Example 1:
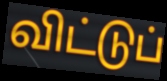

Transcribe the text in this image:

விட்டுப்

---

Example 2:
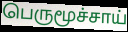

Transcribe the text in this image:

பெருமூச்சாய்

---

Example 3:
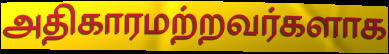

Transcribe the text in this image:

அதிகாரமற்றவர்களாக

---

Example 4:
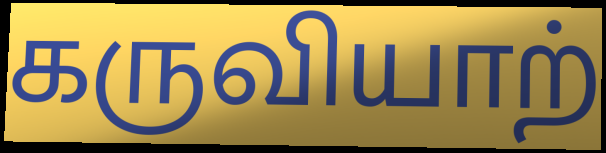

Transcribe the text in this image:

கருவியாற்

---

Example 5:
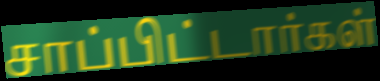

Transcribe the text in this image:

சாப்பிட்டார்கள்